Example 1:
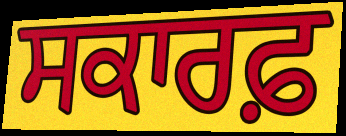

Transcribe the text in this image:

ਸਕਾਰਫ਼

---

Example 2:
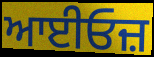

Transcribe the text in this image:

ਆਈਓਜ਼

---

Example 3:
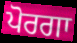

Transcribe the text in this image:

ਪੋਰਗਾ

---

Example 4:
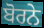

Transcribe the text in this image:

ਬੋਰਨੇ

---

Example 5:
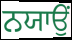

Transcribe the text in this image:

ਨਯਾਉਂ